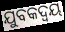
ଯୁବକଦ୍ୱୟ